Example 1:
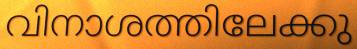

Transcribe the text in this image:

വിനാശത്തിലേക്കു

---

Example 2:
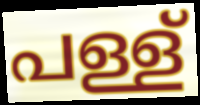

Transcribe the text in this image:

പള്ള്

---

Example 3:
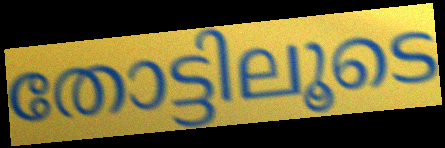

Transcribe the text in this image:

തോട്ടിലൂടെ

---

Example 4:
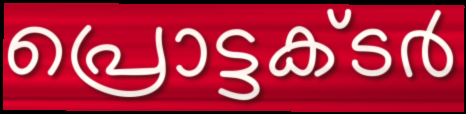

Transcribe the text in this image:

പ്രൊട്ടക്ടർ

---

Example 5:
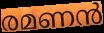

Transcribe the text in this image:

രമണൻ